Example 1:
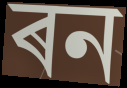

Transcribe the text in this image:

ৰন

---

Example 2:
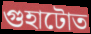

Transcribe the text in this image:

গুহাটোত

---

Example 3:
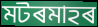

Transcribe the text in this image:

মটৰমাহৰ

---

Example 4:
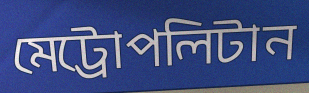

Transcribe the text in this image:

মেট্ৰোপলিটান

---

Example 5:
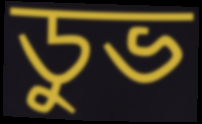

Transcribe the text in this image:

ডুভ